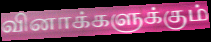
வினாக்களுக்கும்